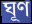
ঘূণ